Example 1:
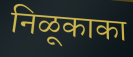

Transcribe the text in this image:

निळूकाका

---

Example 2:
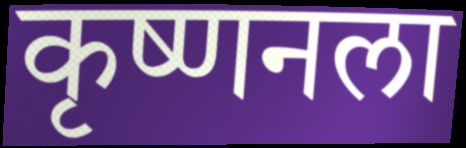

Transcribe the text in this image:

कृष्णनला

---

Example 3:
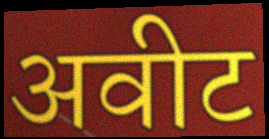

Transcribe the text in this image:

अवीट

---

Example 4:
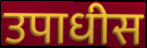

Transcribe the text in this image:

उपाधीस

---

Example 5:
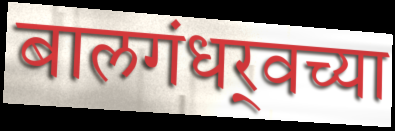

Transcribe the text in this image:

बालगंधर्वच्या